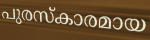
പുരസ്കാരമായ